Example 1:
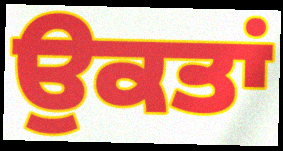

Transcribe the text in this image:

ਉਕਤਾਂ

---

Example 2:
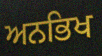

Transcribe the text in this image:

ਅਨਭਿਖ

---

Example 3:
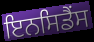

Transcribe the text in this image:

ਇਨਸਿਡੈਂਸ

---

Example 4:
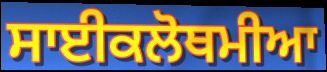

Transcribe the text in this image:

ਸਾਈਕਲੋਥਮੀਆ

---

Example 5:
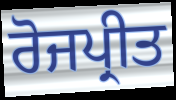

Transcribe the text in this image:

ਰੋਜਪ੍ਰੀਤ